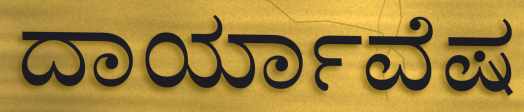
ದಾರ್ಯಾವೆಷ